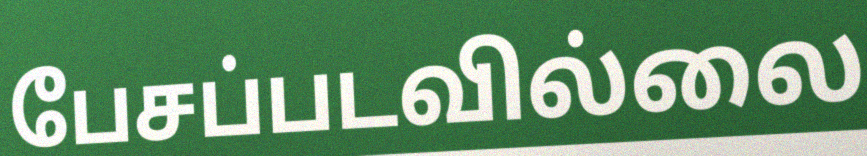
பேசப்படவில்லை